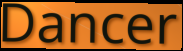
Dancer